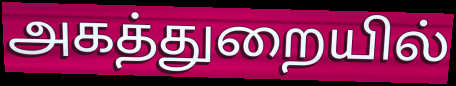
அகத்துறையில்